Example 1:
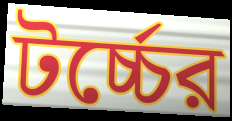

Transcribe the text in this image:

টর্চ্চের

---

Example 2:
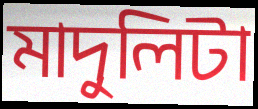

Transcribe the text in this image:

মাদুলিটা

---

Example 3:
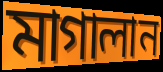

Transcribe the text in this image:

মাগালান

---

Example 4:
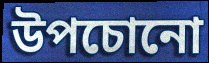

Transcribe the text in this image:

উপচোনো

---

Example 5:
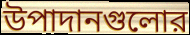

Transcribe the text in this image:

উপাদানগুলোর